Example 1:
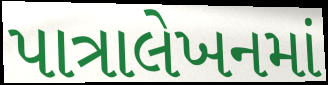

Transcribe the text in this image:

પાત્રાલેખનમાં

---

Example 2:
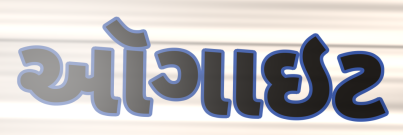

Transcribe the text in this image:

ઑગાઇટ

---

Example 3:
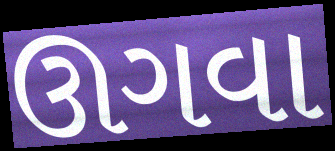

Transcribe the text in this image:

ઊગવા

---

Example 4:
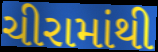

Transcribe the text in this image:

ચીરામાંથી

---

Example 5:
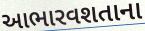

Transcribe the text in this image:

આભારવશતાના